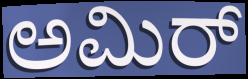
ಅಮಿರ್